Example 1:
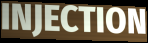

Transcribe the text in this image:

INJECTION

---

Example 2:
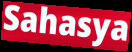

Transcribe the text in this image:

Sahasya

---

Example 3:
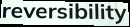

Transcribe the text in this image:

reversibility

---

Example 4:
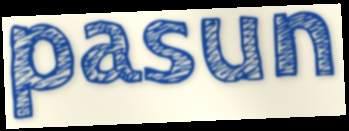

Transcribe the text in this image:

pasun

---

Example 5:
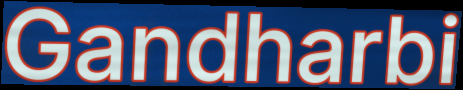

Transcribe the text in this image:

Gandharbi